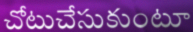
చోటుచేసుకుంటూ